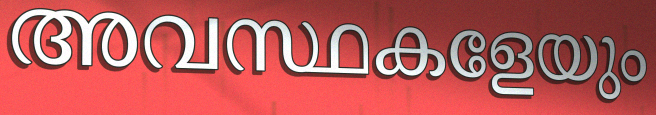
അവസ്ഥകളേയും